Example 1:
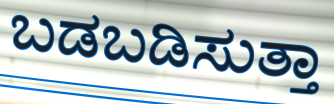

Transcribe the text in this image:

ಬಡಬಡಿಸುತ್ತಾ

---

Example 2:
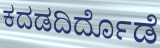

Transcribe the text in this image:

ಕದಡದಿರ್ದೊಡೆ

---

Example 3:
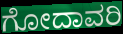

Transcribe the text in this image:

ಗೋದಾವರಿ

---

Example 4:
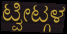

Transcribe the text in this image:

ಟ್ವೀಟ್ಗಳ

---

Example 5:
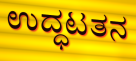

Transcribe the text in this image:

ಉದ್ಧಟತನ